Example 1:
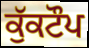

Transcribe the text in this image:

ਕੁੱਕਟੌਪ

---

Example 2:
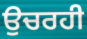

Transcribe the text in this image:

ਉਚਰਹੀ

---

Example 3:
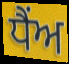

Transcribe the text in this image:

ਧੈਂਅ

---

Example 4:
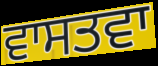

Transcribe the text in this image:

ਵਾਸਤਵਾ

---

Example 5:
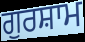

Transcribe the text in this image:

ਗੁਰਸ਼ਾਮ